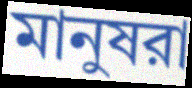
মানুষরা